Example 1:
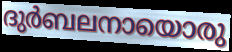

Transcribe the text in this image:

ദുർബലനായൊരു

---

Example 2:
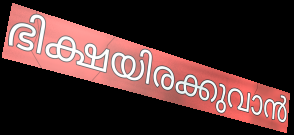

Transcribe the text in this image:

ഭിക്ഷയിരക്കുവാൻ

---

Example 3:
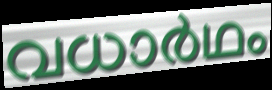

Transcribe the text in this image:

വധാർഥം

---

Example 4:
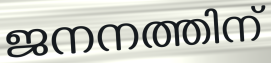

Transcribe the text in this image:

ജനനത്തിന്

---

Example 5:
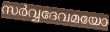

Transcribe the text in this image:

സർവ്വദേവമയോ